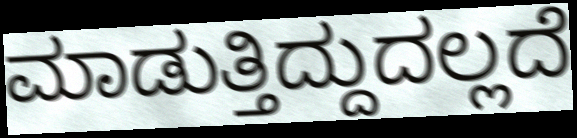
ಮಾಡುತ್ತಿದ್ದುದಲ್ಲದೆ